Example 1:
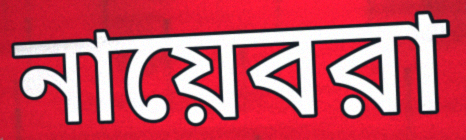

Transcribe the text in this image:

নায়েবরা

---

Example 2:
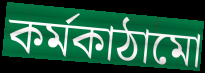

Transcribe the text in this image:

কর্মকাঠামো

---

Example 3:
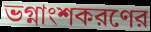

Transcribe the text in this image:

ভগ্নাংশকরণের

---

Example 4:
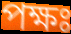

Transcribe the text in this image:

পক্ষঃ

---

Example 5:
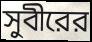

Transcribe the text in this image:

সুবীরের